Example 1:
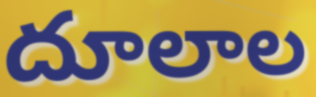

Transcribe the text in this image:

దూలాల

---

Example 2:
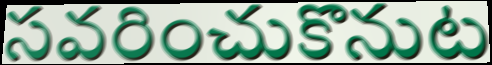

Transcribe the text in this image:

సవరించుకొనుట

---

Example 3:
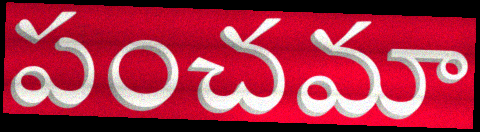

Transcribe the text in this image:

పంచమా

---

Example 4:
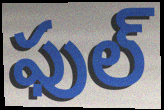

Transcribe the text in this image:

ఫుల్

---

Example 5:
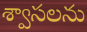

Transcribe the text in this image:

శ్వాసలను